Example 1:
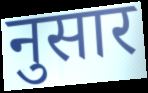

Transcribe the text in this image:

नुसार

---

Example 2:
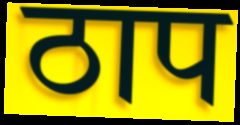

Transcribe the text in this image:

ठाप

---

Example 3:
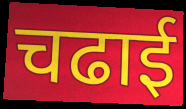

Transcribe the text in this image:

चढाई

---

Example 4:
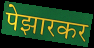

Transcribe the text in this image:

पेझारकर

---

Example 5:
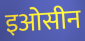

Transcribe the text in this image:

इओसीन